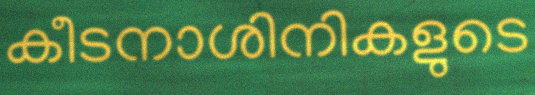
കീടനാശിനികളുടെ